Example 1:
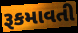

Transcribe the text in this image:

રૂકમાવતી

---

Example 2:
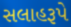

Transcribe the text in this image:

સલાહરૂપે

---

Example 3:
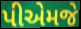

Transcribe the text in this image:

પીએમજે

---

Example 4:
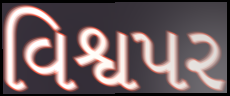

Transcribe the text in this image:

વિશ્વપર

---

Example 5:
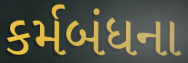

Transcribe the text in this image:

કર્મબંધના